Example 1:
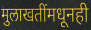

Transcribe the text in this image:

मुलाखतींमधूनही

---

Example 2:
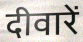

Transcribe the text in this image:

दीवारें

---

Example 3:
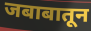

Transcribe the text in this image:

जबाबातून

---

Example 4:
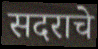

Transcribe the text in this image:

सदराचे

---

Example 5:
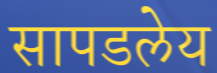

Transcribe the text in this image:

सापडलेय